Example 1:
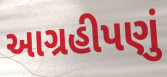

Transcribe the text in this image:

આગ્રહીપણું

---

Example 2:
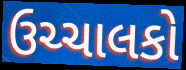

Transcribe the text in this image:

ઉચ્ચાલકો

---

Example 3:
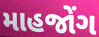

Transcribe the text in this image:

માહજોંગ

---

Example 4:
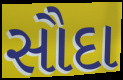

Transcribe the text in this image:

સૌદા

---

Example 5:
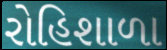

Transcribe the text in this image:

રોહિશાળા